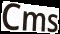
Cms